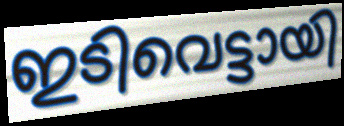
ഇടിവെട്ടായി